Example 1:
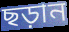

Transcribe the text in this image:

ছড়ান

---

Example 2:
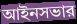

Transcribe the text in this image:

আইনসভার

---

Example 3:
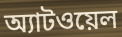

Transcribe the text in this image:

অ্যাটওয়েল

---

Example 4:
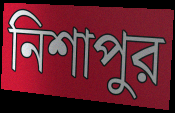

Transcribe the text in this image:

নিশাপুর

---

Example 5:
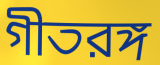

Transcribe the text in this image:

গীতরঙ্গ